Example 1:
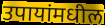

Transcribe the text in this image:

उपायांमधील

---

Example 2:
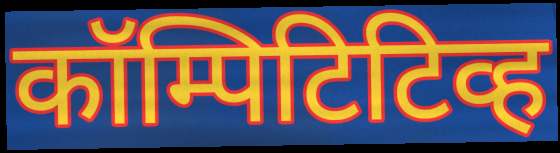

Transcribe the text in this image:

कॉम्पिटिटिव्ह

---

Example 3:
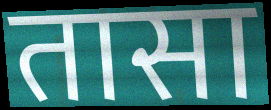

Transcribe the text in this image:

तासा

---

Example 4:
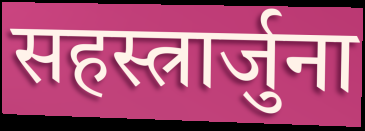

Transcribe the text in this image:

सहस्त्रार्जुना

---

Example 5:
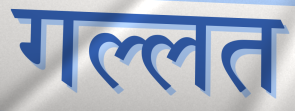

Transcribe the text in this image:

गल्लत